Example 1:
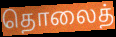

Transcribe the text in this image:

தொலைத்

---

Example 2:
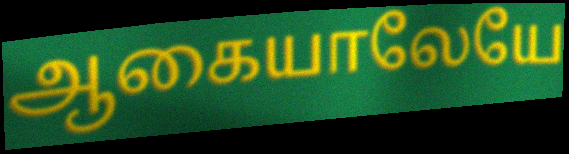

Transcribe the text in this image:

ஆகையாலேயே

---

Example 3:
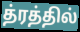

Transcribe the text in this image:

த்ரத்தில்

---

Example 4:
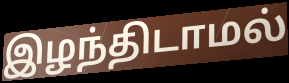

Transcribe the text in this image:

இழந்திடாமல்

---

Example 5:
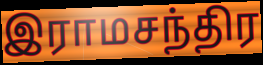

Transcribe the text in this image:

இராமசந்திர